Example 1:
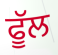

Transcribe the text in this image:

ਫੂੱਲ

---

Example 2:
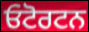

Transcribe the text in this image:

ਓਟੋਰਟਨ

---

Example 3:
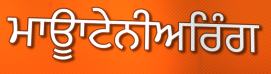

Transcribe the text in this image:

ਮਾਊਾਟੇਨੀਅਰਿੰਗ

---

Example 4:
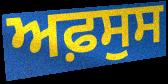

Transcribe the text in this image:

ਅਫ਼ਸੁਸ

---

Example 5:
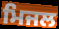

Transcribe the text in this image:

ਮਿਜਲ